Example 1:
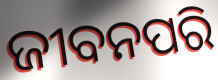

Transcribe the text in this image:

ଜୀବନପରି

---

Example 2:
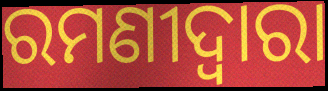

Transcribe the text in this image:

ରମଣୀଦ୍ୱାରା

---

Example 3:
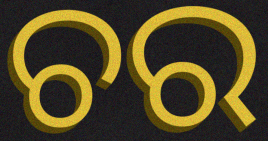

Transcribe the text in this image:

ଚର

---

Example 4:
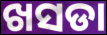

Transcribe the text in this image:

ଖସଡା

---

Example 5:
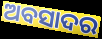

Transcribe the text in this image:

ଅବସାଦର